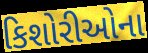
કિશોરીઓના